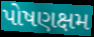
પોષણક્ષમ